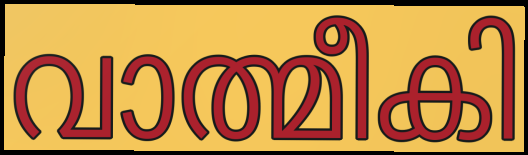
വാത്മീകി